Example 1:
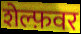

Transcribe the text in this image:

शेल्फ़वर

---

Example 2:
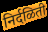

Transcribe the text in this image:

निर्दळिती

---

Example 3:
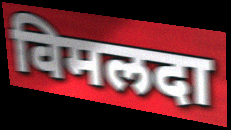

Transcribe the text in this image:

विमलदा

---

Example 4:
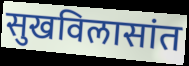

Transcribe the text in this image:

सुखविलासांत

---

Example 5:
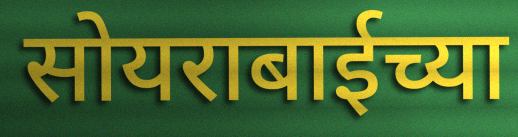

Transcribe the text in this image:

सोयराबाईच्या